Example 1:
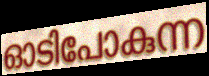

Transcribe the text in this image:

ഓടിപോകുന്ന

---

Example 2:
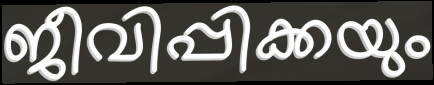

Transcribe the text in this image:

ജീവിപ്പിക്കയും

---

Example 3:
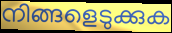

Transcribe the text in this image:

നിങ്ങളെടുക്കുക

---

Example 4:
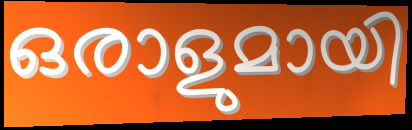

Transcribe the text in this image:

ഒരാളുമായി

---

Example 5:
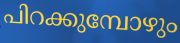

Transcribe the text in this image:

പിറക്കുമ്പോഴും